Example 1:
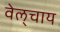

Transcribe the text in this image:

वेल्चाय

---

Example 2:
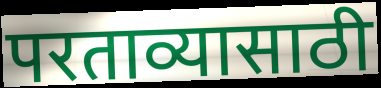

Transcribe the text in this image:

परताव्यासाठी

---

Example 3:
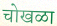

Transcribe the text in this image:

चोखळा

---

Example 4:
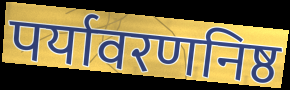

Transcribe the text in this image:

पर्यावरणनिष्ठ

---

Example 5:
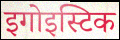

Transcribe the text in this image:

इगोइस्टिक